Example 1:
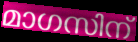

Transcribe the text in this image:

മാഗസിന്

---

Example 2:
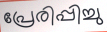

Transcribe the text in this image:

പ്രേരിപ്പിച്ചു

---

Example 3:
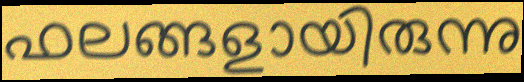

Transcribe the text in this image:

ഫലങ്ങളായിരുന്നു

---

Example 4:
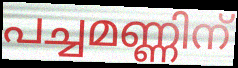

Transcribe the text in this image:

പച്ചമണ്ണിന്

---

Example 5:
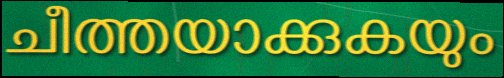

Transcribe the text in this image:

ചീത്തയാക്കുകയും